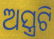
ଅସ୍ତ୍ରଟି